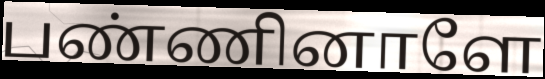
பண்ணினாளே